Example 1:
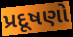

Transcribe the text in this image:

પ્રદૂષણો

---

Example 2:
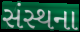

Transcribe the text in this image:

સંસ્થના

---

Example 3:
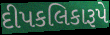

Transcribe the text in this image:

દીપકલિકારૂપે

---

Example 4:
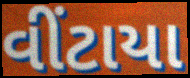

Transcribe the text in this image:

વીંટાયા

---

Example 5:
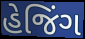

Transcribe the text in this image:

હેજિંગ